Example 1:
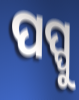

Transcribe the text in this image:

ପପ୍ପୁ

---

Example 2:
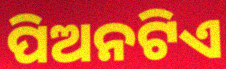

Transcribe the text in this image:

ପିଅନଟିଏ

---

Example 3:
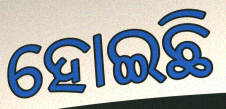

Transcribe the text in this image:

ହୋଇଛି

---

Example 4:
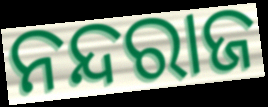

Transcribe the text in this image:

ନନ୍ଦରାଜ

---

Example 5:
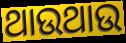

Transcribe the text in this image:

ଥାଉଥାଉ